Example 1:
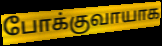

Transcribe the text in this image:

போக்குவாயாக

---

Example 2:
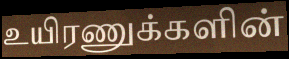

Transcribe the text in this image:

உயிரணுக்களின்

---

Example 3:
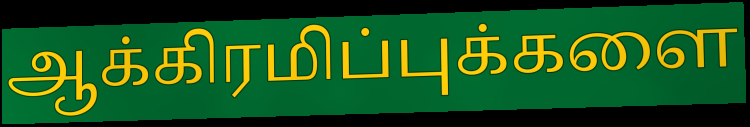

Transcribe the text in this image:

ஆக்கிரமிப்புக்களை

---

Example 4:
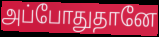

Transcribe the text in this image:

அப்போதுதானே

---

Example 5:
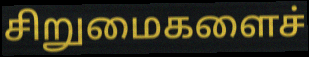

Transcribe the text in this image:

சிறுமைகளைச்